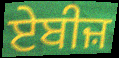
ਏਬੀਜ਼